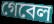
গেবেল